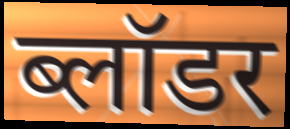
ब्लॉडर